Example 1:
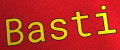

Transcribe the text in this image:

Basti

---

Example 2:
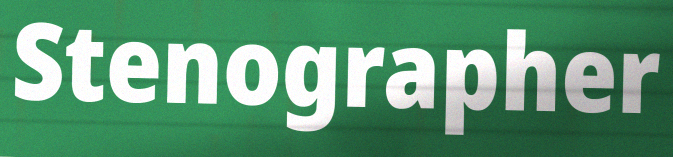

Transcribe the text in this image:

Stenographer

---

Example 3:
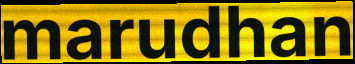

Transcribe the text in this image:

marudhan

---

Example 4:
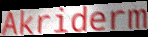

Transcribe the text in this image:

Akriderm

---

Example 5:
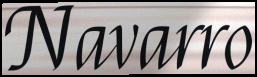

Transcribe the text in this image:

Navarro